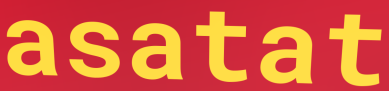
asatat